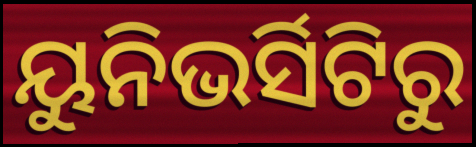
ୟୁନିଭର୍ସିଟିରୁ